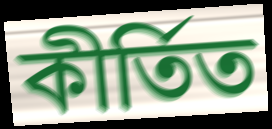
কীর্তিত